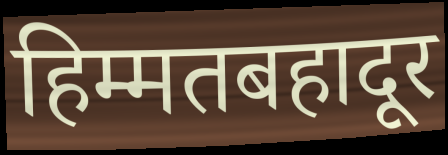
हिम्मतबहादूर